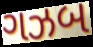
ગઝબ